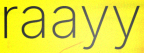
raayy